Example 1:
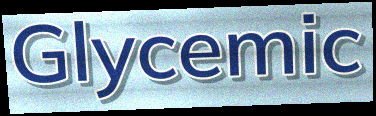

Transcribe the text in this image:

Glycemic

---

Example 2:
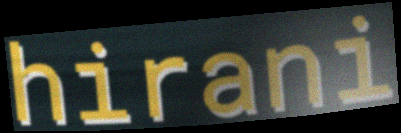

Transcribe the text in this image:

hirani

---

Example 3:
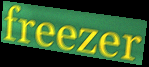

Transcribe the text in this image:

freezer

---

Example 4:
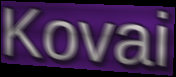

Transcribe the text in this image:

Kovai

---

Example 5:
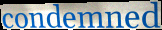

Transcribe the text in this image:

condemned